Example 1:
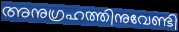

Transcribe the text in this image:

അനുഗ്രഹത്തിനുവേണ്ടി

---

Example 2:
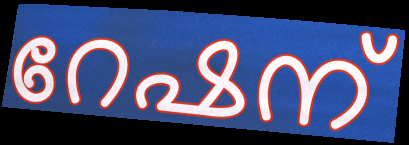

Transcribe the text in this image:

റേഷന്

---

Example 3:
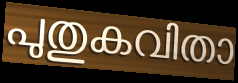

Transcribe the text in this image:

പുതുകവിതാ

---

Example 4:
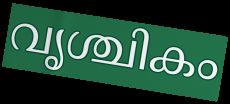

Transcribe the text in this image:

വൃശ്ചികം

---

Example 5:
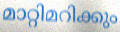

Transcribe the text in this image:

മാറ്റിമറിക്കും